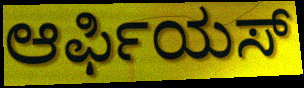
ಆರ್ಫಿಯಸ್